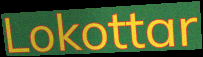
Lokottar